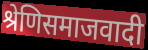
श्रेणिसमाजवादी